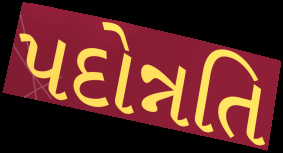
પદોન્નતિ